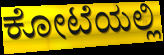
ಕೋಟೆಯಲ್ಲಿ